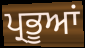
ਪ੍ਰਭੂਆਂ